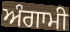
ਅੰਗਾਮੀ